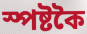
স্পষ্টকৈ